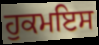
ਹੁਕਮਇਸ